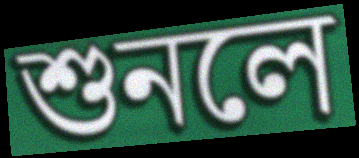
শুনলে